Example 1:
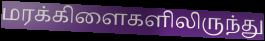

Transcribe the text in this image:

மரக்கிளைகளிலிருந்து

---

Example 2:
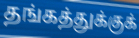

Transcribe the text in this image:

தங்கத்துக்குக்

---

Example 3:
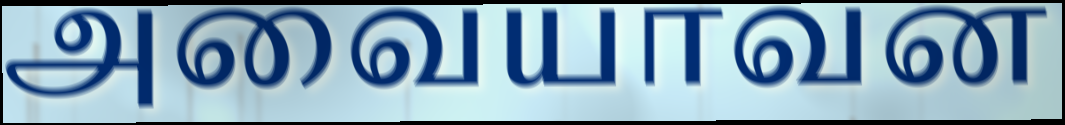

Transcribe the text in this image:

அவையாவன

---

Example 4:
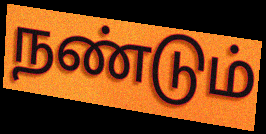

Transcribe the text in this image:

நண்டும்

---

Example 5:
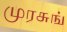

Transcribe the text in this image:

முரசுங்